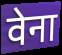
वेना